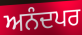
ਅਨੰਦਪਰ